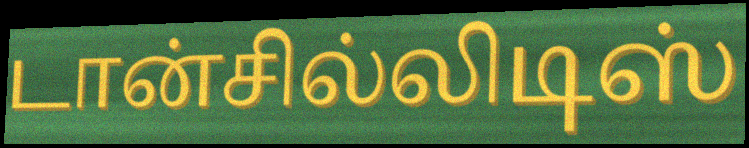
டான்சில்லிடிஸ்